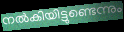
നൽകിയിട്ടുണ്ടെന്നും